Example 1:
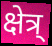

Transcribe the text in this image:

क्षेत्र्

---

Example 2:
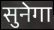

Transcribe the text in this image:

सुनेगा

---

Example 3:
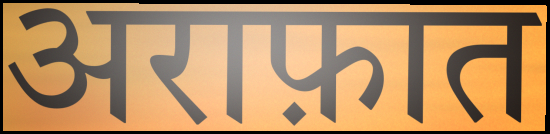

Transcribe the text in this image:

अराफ़ात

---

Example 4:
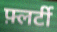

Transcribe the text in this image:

फ़्लर्टी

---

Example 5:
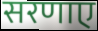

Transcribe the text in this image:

सरणाए